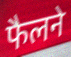
फैलने